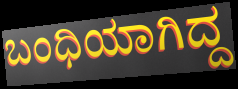
ಬಂಧಿಯಾಗಿದ್ದ